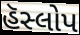
હૅસ્લોપ